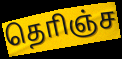
தெரிஞ்ச